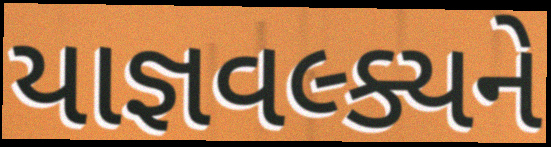
યાજ્ઞવલ્ક્યને